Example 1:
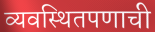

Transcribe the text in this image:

व्यवस्थितपणाची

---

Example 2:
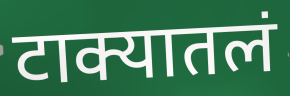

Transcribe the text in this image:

टाक्यातलं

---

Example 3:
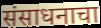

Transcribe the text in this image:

संसाधनाचा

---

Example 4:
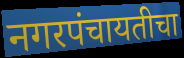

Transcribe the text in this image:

नगरपंचायतीचा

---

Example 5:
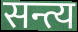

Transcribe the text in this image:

सन्त्य